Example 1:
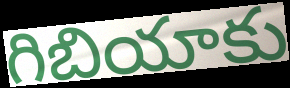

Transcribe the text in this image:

గిబియాకు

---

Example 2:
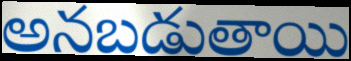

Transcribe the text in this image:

అనబడుతాయి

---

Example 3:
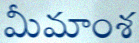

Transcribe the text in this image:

మీమాంశ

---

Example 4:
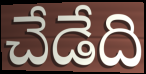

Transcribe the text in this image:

చేడేది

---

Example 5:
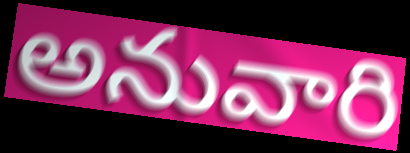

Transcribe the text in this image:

అనువారి